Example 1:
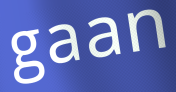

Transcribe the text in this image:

gaan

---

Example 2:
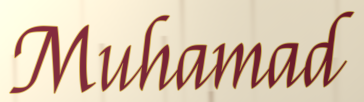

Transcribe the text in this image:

Muhamad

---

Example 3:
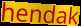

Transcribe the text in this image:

hendak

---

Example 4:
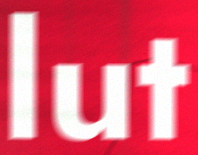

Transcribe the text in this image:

lut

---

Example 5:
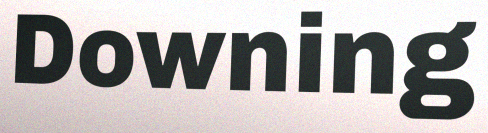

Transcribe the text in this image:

Downing